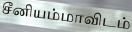
சீனியம்மாவிடம்